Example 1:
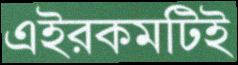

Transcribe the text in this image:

এইরকমটিই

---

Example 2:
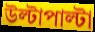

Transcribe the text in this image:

উল্টাপাল্টা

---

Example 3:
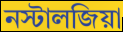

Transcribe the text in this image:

নস্টালজিয়া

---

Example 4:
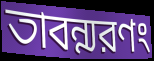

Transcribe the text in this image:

তাবন্মরণং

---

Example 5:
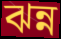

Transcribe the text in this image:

ঝন্ন